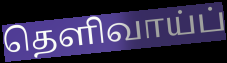
தெளிவாய்ப்